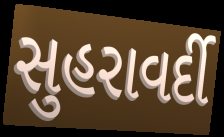
સુહરાવર્દી